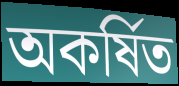
অকৰ্ষিত